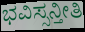
ಭವಿಸ್ಸನ್ತೀತಿ